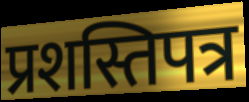
प्रशस्तिपत्र